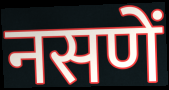
नसणें